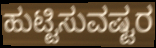
ಹುಟ್ಟಿಸುವಷ್ಟರ